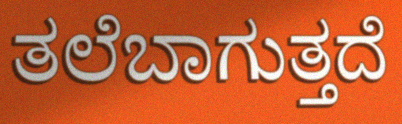
ತಲೆಬಾಗುತ್ತದೆ